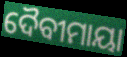
ଦୈବୀମାୟା